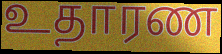
உதாரண